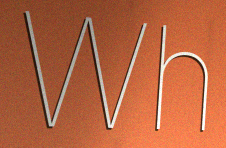
Wh